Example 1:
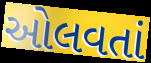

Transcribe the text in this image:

ઓલવતાં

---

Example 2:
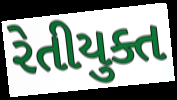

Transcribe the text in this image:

રેતીયુક્ત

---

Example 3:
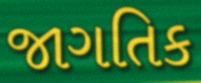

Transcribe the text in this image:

જાગતિક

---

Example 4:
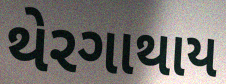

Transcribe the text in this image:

થેરગાથાય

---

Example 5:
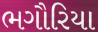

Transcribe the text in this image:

ભગૌરિયા